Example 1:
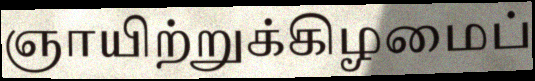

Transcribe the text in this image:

ஞாயிற்றுக்கிழமைப்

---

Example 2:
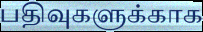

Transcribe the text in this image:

பதிவுகளுக்காக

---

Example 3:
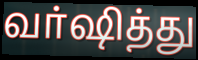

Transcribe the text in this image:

வர்ஷித்து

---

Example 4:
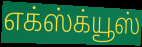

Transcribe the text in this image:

எக்ஸ்க்யூஸ்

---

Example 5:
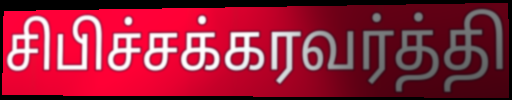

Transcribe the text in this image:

சிபிச்சக்கரவர்த்தி